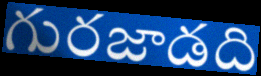
గురజాడది